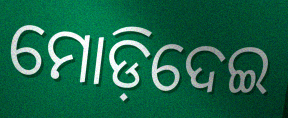
ମୋଡ଼ିଦେଇ